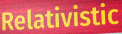
Relativistic